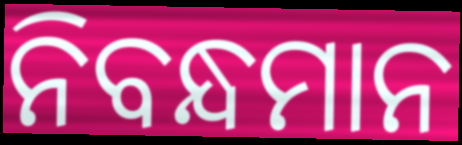
ନିବନ୍ଧମାନ